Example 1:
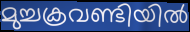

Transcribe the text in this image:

മുച്ചക്രവണ്ടിയിൽ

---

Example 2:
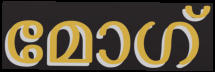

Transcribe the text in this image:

മോഗ്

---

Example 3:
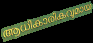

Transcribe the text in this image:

ആധികാരികവുമായ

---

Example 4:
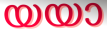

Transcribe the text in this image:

യയാ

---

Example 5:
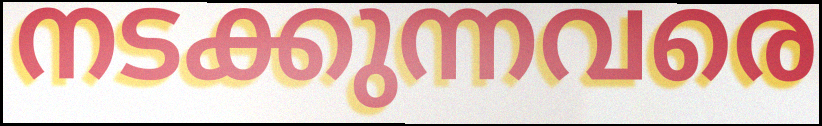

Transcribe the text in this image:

നടക്കുന്നവരെ